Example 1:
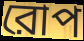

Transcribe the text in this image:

রোপ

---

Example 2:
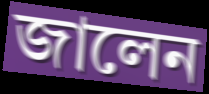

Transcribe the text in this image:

জালেন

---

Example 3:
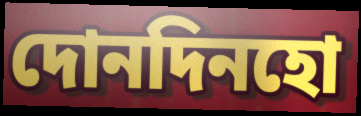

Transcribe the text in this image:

দোনদিনহো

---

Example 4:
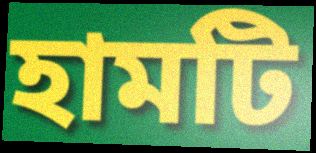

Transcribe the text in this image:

হামটি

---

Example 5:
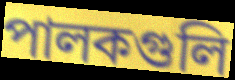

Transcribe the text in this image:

পালকগুলি